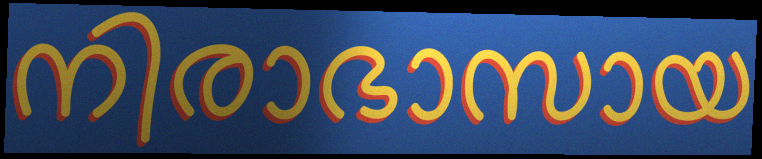
നിരാഭാസായ